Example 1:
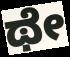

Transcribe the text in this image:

ಥೇ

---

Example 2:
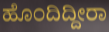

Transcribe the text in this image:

ಹೊಂದಿದ್ದೀರಾ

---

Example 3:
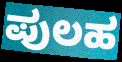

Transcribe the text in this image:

ಪುಲಹ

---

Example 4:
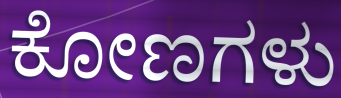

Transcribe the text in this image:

ಕೋಣಗಳು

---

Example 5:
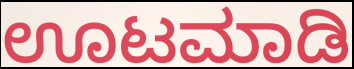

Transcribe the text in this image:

ಊಟಮಾಡಿ